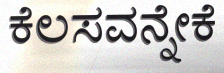
ಕೆಲಸವನ್ನೇಕೆ